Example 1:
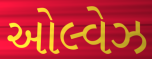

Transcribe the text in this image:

ઓલ્વેઝ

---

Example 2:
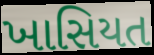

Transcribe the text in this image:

ખાસિયત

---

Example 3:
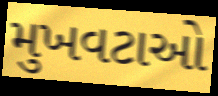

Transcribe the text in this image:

મુખવટાઓ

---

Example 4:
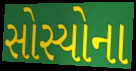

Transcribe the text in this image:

સોસ્યોના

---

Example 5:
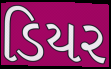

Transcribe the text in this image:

ડિયર